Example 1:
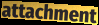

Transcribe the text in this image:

attachment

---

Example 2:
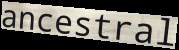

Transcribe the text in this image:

ancestral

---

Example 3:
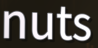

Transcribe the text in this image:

nuts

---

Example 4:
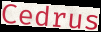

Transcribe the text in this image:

Cedrus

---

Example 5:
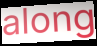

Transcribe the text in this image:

along